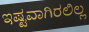
ಇಷ್ಟವಾಗಿರಲಿಲ್ಲ